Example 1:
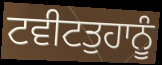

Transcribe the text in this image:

ਟਵੀਟਤੁਹਾਨੂੰ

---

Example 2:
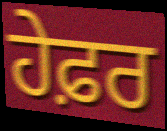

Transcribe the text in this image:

ਹੇਫ਼ਰ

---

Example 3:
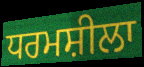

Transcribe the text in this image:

ਧਰਮਸ਼ੀਲਾ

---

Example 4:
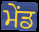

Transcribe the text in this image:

ਮੇਂਡ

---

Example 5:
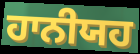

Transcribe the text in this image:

ਹਾਨੀਯਹ